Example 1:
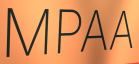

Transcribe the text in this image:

MPAA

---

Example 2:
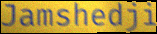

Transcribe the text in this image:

Jamshedji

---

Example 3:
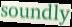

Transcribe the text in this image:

soundly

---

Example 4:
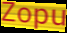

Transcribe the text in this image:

Zopu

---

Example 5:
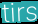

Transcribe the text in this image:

tirs